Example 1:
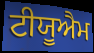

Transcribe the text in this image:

ਟੀਯੂਐਮ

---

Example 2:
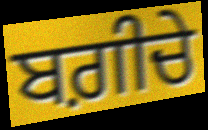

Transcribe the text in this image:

ਬਗ਼ੀਚੇ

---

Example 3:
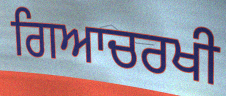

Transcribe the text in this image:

ਗਿਆਚਰਖੀ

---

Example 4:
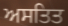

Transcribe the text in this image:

ਅਸਤਿਤ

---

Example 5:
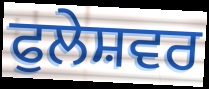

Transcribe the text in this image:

ਫੁਲੇਸ਼ਵਰ